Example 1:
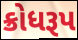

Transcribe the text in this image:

ક્રોધરૂપ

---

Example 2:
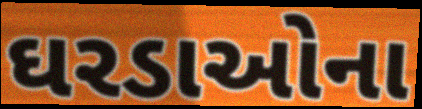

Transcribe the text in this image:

ઘરડાઓના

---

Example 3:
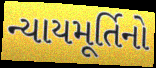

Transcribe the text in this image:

ન્યાયમૂર્તિનો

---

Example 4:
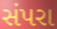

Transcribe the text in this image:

સંપરા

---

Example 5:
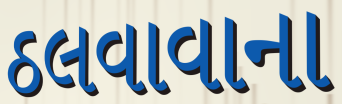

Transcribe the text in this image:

ઠલવાવાના